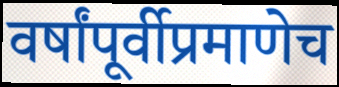
वर्षांपूर्वीप्रमाणेच